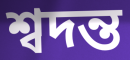
শ্বদন্ত